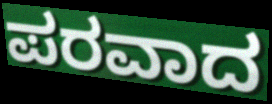
ಪರವಾದ